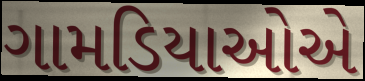
ગામડિયાઓએ